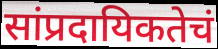
सांप्रदायिकतेचं